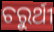
ଚରୁର୍ଥୀ